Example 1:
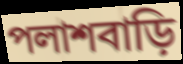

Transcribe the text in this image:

পলাশবাড়ি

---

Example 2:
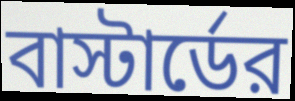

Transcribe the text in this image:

বাস্টার্ডের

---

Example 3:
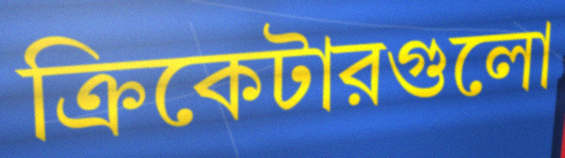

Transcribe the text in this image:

ক্রিকেটারগুলো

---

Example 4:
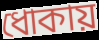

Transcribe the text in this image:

ধোকায়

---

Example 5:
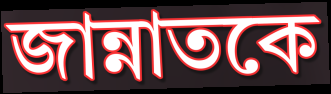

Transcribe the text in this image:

জান্নাতকে